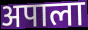
अपाला